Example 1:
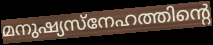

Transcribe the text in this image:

മനുഷ്യസ്നേഹത്തിന്റെ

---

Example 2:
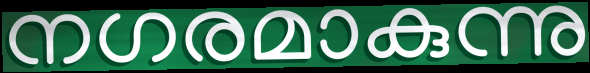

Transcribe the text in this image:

നഗരമാകുന്നു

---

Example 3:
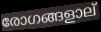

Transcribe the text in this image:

രോഗങ്ങളാല്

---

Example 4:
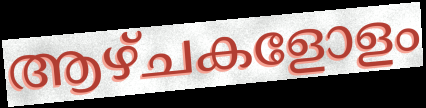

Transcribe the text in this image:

ആഴ്ചകളോളം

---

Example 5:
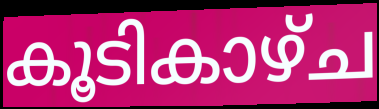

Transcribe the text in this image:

കൂടികാഴ്ച